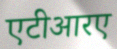
एटीआरए